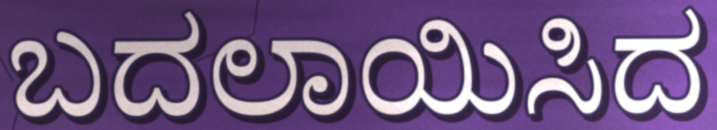
ಬದಲಾಯಿಸಿದ